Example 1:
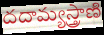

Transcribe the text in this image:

దదామ్యస్త్రాణి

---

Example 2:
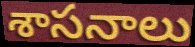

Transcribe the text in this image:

శాసనాలు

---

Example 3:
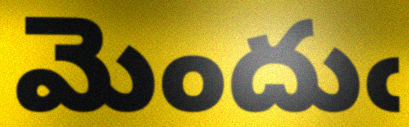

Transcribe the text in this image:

మెందుఁ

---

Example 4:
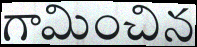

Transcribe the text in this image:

గామించిన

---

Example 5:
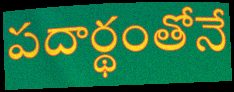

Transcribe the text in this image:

పదార్థంతోనే